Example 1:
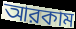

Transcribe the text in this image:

আরকাম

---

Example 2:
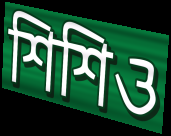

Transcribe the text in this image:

শিশিও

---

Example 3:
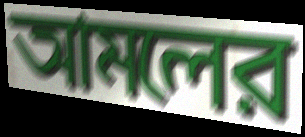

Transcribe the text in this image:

আমলের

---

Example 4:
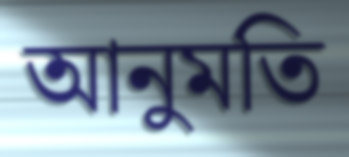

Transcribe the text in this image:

আনুমতি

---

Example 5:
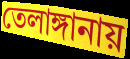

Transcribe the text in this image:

তেলাঙ্গানায়